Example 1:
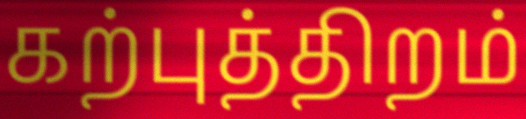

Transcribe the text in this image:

கற்புத்திறம்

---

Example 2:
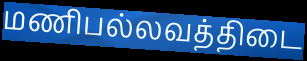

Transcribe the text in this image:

மணிபல்லவத்திடை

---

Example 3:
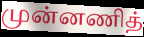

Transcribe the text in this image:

முன்னணித்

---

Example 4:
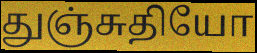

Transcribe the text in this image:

துஞ்சுதியோ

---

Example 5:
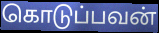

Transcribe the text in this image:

கொடுப்பவன்